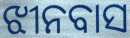
ଝୀନବାସ